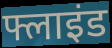
फ्लाइंड